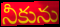
నీకును